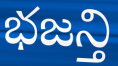
భజన్తి